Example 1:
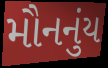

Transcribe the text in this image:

મૌનનુંય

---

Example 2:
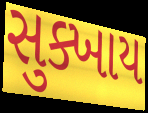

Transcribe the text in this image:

સુક્ખાય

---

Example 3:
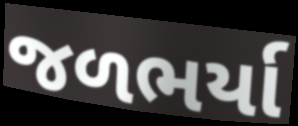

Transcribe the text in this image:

જળભર્યા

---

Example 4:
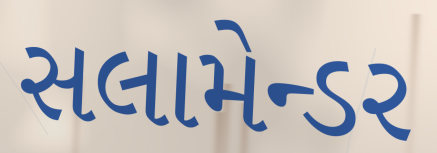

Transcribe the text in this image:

સલામેન્ડર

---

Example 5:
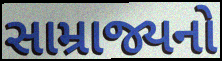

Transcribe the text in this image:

સામ્રાજ્યનો